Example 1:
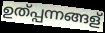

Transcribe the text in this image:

ഉത്പ്പന്നങ്ങള്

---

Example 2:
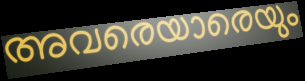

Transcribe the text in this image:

അവരെയാരെയും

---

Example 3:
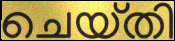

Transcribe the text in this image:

ചെയ്‌തി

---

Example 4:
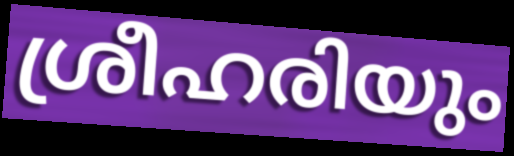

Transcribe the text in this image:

ശ്രീഹരിയും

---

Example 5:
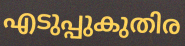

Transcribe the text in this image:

എടുപ്പുകുതിര